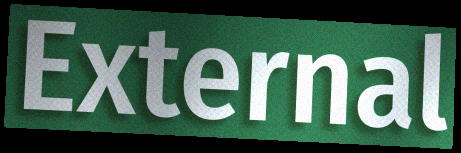
External